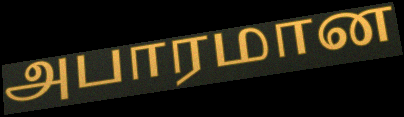
அபாரமான